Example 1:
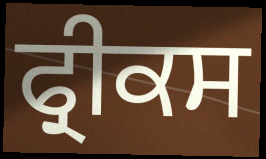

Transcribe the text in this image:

ਫ੍ਰੀਕਸ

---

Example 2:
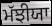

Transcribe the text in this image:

ਮੱਝੀਯਾ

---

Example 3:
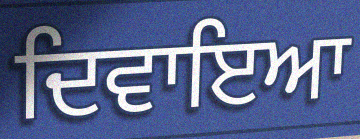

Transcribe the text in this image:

ਦਿਵਾਇਆ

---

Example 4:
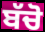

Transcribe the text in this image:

ਬੱਚੋ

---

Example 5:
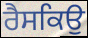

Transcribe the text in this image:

ਰੈਸਕਿਉ